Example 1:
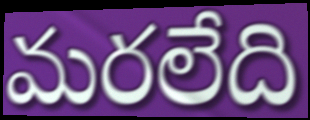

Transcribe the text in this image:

మరలేది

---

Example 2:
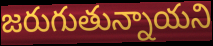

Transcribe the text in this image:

జరుగుతున్నాయని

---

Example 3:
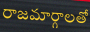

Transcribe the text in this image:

రాజమార్గాలతో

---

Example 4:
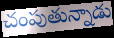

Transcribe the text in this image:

చంపుతున్నాడు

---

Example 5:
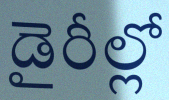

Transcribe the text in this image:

డైరీల్లో